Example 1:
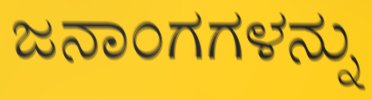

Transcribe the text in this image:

ಜನಾಂಗಗಳನ್ನು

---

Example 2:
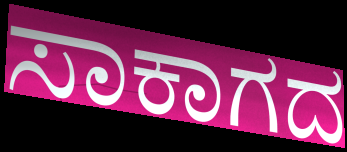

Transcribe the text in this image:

ಸಾಕಾಗದ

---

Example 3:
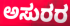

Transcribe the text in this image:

ಅಸುರರ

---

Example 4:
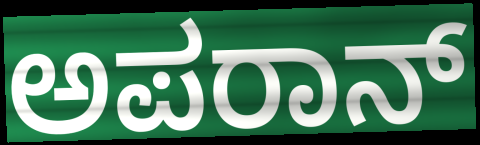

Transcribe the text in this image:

ಅಪರಾನ್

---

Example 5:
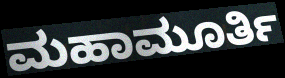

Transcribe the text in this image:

ಮಹಾಮೂರ್ತಿ